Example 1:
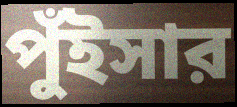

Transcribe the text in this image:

পুঁইসার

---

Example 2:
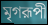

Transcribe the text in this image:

মৃগরূপী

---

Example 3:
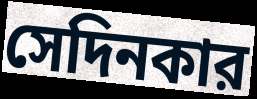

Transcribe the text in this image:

সেদিনকার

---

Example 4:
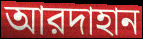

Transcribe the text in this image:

আরদাহান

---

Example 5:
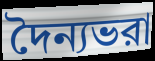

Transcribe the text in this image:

দৈন্যভরা